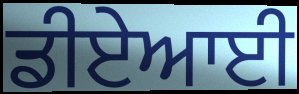
ਡੀਏਆਈ